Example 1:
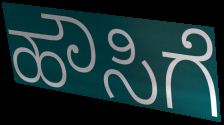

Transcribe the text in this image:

ಹೌಸಿಗೆ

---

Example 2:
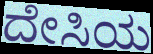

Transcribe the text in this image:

ದೇಸಿಯ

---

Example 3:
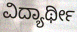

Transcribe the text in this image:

ವಿದ್ಯಾರ್ಥೀ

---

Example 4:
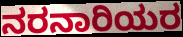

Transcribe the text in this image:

ನರನಾರಿಯರ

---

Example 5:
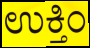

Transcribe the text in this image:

ಉಕ್ತಿಂ